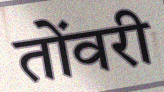
तोंवरी